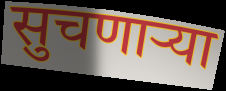
सुचणाऱ्या